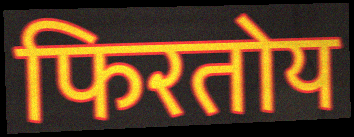
फिरतोय